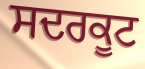
ਸਦਰਕੂਟ